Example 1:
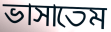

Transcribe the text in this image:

ভাসাতেম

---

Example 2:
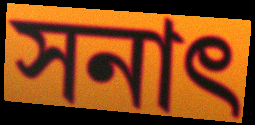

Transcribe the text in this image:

সনাৎ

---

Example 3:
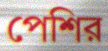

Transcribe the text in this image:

পেশির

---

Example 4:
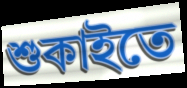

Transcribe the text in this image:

শুকাইতে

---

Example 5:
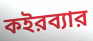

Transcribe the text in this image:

কইরব্যার